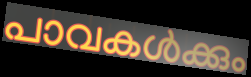
പാവകൾക്കും